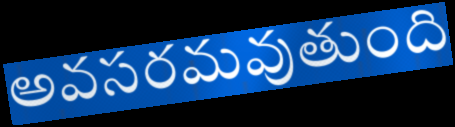
అవసరమవుతుంది